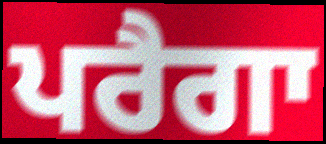
ਪਰੈਗਾ